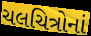
ચલચિત્રોનાં